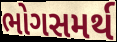
ભોગસમર્થ